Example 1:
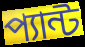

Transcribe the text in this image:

প্যান্ট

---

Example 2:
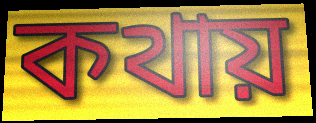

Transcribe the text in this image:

কথায়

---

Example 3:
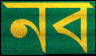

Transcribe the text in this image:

নব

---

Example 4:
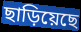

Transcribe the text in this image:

ছাড়িয়েছে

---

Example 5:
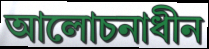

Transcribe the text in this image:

আলোচনাধীন